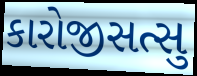
કારોજીસત્સુ